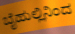
ಬೈಹುಲ್ಲಿನಿಂದ